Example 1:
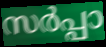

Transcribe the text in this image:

സർപ്പാ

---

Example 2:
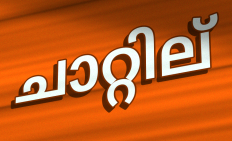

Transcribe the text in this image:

ചാറ്റില്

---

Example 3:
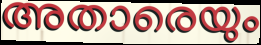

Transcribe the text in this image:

അതാരെയും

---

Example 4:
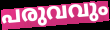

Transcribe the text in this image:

പരുവവും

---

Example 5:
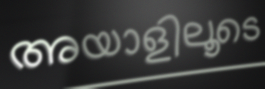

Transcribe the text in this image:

അയാളിലൂടെ